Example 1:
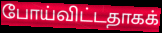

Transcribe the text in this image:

போய்விட்டதாகக்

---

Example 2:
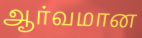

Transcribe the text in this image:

ஆர்வமான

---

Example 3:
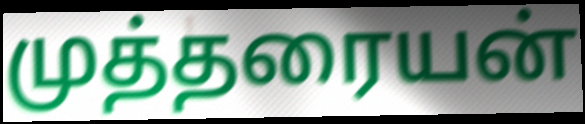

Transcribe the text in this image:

முத்தரையன்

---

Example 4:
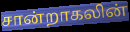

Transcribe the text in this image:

சான்றாகலின்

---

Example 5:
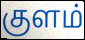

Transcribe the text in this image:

குளம்